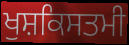
ਖੁਸ਼ਕਿਸਤਮੀ